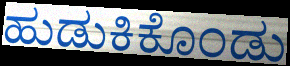
ಹುಡುಕಿಕೊಂಡು